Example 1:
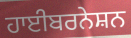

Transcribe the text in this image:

ਹਾਈਬਰਨੇਸ਼ਨ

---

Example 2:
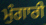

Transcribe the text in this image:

ਮੁੰਗਾਰੀ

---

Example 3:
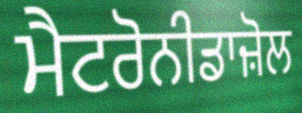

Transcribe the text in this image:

ਮੈਟਰੋਨੀਡਾਜ਼ੋਲ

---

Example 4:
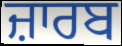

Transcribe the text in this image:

ਜ਼ਾਰਬ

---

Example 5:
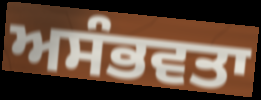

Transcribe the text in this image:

ਅਸੰਭਵਤਾ